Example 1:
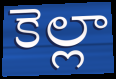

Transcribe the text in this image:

కెల్లా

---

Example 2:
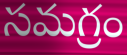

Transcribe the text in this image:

సమగ్రం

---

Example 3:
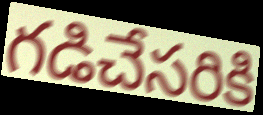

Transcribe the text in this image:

గడిచేసరికి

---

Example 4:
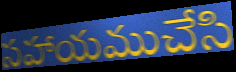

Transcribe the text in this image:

సహాయముచేసి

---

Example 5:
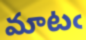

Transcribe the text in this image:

మాటఁ